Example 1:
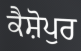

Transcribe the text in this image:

ਕੈਸ਼ੋਪੁਰ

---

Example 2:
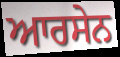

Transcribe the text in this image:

ਆਰਸੇਨ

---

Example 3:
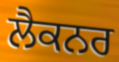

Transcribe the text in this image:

ਲੈਕਨਰ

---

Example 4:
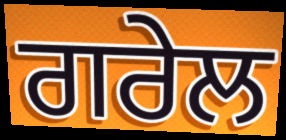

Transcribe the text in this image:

ਗਰੇਲ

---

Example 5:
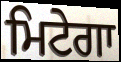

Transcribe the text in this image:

ਮਿਟੇਗਾ